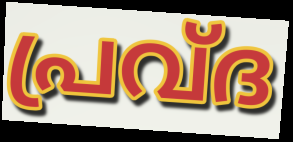
പ്രവ്ദ